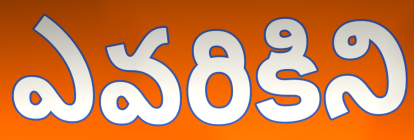
ఎవరికిని